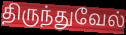
திருந்துவேல்